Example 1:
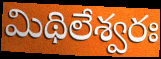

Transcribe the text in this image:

మిథిలేశ్వరః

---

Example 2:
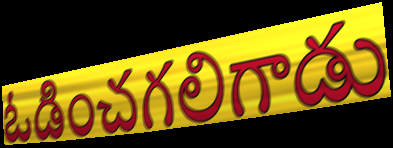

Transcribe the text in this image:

ఓడించగలిగాడు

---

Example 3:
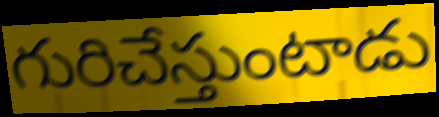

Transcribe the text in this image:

గురిచేస్తుంటాడు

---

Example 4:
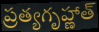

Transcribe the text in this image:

ప్రత్యగృహ్ణాత్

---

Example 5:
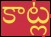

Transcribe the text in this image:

కాట్ల